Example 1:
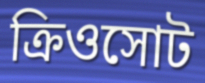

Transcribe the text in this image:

ক্রিওসোট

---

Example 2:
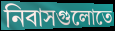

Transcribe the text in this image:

নিবাসগুলোতে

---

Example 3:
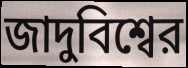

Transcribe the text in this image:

জাদুবিশ্বের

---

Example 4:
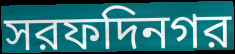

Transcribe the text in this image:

সরফদিনগর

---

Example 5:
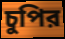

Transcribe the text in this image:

চুপির